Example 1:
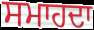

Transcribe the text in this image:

ਸਮਾਹਦਾ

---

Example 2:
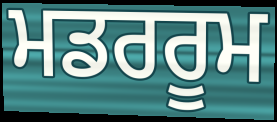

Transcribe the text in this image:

ਮਡਰਰੂਮ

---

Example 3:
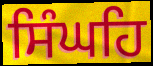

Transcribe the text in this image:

ਸਿੰਘਹਿ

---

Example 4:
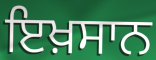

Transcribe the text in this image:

ਇਖ਼ਸਾਨ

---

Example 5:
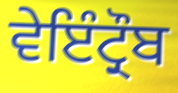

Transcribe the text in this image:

ਵੇਇੰਟ੍ਰੌਬ